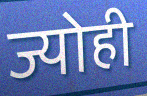
ज्योही